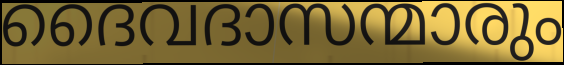
ദൈവദാസന്മാരും